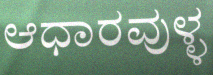
ಆಧಾರವುಳ್ಳ